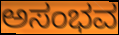
ಅಸಂಭವ